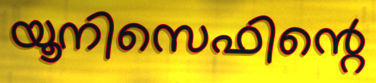
യൂനിസെഫിന്റെ